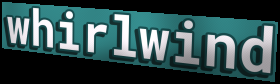
whirlwind